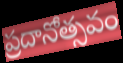
ప్రదానోత్సవం